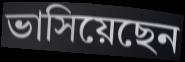
ভাসিয়েছেন